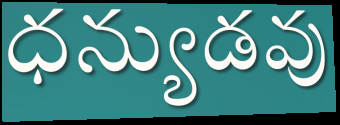
ధన్యుడవు